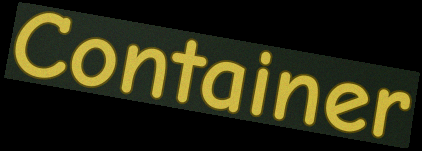
Container